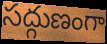
సద్గుణంగా